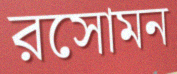
রসোমন